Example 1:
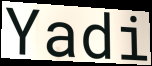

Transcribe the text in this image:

Yadi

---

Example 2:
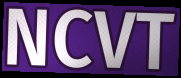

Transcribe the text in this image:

NCVT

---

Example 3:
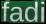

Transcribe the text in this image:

fadi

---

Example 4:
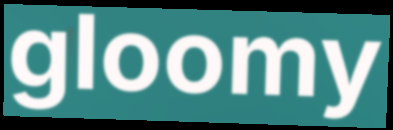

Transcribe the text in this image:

gloomy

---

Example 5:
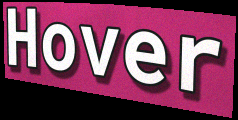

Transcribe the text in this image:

Hover